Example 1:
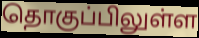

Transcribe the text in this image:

தொகுப்பிலுள்ள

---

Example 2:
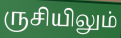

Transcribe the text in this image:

ருசியிலும்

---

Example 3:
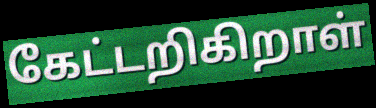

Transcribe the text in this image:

கேட்டறிகிறாள்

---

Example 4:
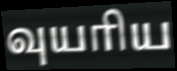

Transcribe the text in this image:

வுயரிய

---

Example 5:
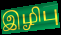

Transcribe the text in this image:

இழிபு